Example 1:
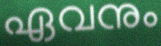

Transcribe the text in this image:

ഏവനും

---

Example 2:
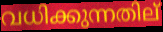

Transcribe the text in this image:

വധിക്കുന്നതില്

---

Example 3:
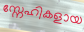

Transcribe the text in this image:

സ്നേഹികളായ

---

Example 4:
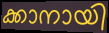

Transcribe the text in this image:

ക്കാനായി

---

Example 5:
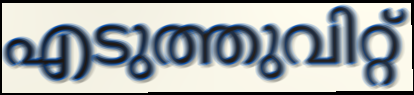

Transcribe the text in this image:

എടുത്തുവിറ്റ്